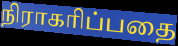
நிராகரிப்பதை